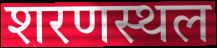
शरणस्थल